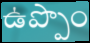
ఉప్పొం